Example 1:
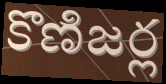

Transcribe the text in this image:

కొణిజర్ల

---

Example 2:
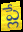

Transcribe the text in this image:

ప్లే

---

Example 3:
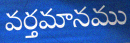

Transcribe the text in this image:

వర్తమానము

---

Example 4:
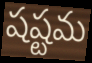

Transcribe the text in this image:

షష్టమ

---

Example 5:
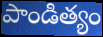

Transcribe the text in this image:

పాండిత్యం